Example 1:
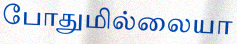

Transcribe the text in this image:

போதுமில்லையா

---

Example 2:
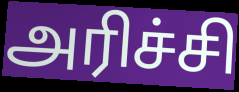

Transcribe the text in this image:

அரிச்சி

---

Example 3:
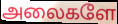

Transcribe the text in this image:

அலைகளே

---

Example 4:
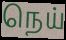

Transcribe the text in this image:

நெய்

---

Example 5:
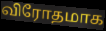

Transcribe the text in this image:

விரோதமாக